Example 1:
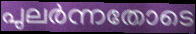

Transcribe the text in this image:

പുലർന്നതോടെ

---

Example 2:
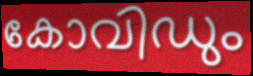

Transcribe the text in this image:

കോവിഡും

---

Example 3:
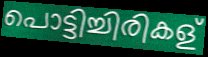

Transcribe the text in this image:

പൊട്ടിച്ചിരികള്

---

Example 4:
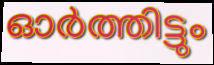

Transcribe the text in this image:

ഓർത്തിട്ടും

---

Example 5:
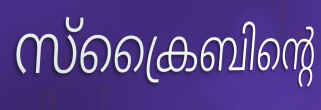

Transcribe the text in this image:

സ്ക്രൈബിന്റെ